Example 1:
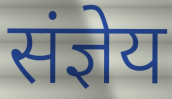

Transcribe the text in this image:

संज्ञेय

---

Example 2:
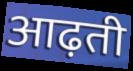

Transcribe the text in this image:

आढ़ती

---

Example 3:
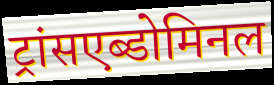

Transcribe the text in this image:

ट्रांसएब्डोमिनल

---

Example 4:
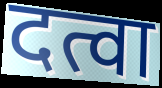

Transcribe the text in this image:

दत्वा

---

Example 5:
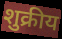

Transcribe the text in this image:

शुक्रीय